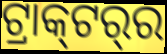
ଟ୍ରାକ୍‍ଟର୍‍ର